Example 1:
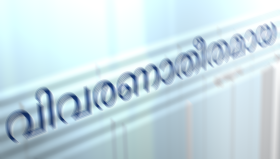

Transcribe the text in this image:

വിവരണാതീതമായ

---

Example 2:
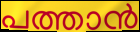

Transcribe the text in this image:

പത്താൻ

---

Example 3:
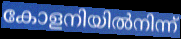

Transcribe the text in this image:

കോളനിയിൽനിന്ന്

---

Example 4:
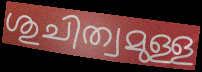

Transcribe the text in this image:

ശുചിത്വമുള്ള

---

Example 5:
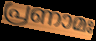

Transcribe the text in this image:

പ്രണാമഃ